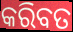
କରିବତ